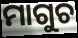
ମାଗୁଚ